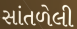
સાંતળેલી